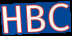
HBC